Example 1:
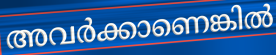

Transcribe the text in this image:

അവർക്കാണെങ്കിൽ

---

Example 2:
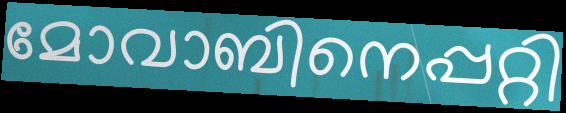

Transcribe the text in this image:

മോവാബിനെപ്പറ്റി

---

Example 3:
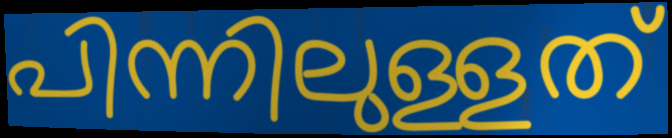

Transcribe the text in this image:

പിന്നിലുള്ളത്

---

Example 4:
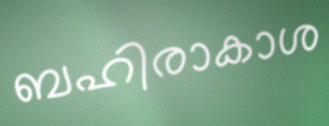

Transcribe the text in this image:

ബഹിരാകാശ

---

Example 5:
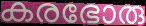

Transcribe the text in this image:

കരഭോരു